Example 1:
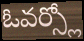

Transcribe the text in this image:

ఓవర్స్లో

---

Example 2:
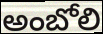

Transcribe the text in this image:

అంబోలి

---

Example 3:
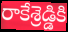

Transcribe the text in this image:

రాకేశ్రెడ్డికి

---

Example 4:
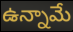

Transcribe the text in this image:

ఉన్నామే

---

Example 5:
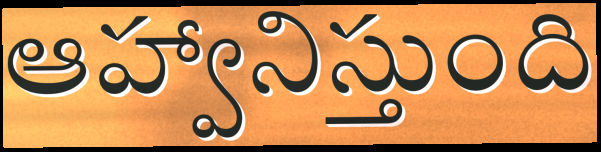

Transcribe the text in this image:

ఆహ్వానిస్తుంది